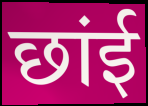
छांई